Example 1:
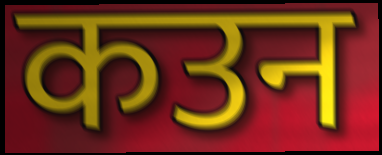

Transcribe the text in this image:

कउन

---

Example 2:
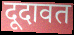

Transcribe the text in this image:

दूदावत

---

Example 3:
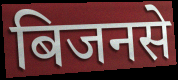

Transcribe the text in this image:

बिजनसे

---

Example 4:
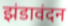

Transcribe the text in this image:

झंडावंदन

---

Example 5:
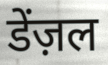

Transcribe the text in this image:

डेंज़ल